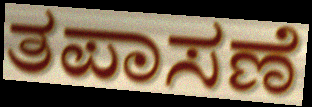
ತಪಾಸಣೆ